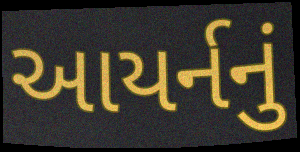
આયર્નનું